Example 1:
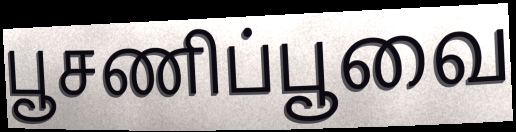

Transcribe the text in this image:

பூசணிப்பூவை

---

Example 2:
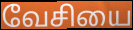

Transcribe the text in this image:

வேசியை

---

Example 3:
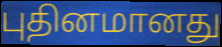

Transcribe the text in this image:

புதினமானது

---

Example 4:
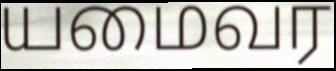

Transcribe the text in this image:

யமைவர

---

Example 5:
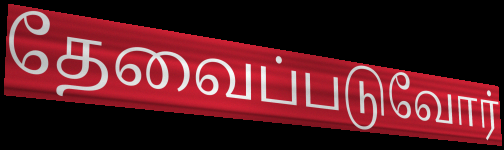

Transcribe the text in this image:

தேவைப்படுவோர்